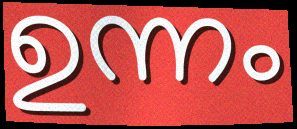
ഉന്നം